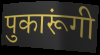
पुकारूंगी